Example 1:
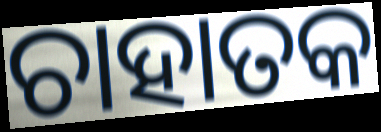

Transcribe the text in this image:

ଚାହାତକ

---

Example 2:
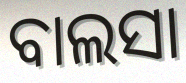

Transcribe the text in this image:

ବାଲସା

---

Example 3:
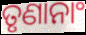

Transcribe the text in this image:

ତୃଣାନାଂ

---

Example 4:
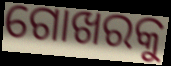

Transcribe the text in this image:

ଗୋଖରକୁ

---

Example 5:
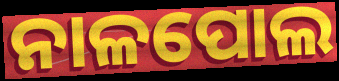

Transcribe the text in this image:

ନାଳପୋଲ